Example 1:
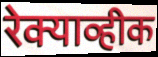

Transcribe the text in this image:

रेक्याव्हीक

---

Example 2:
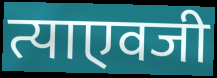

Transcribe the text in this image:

त्याएवजी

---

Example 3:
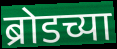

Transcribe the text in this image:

ब्रोडच्या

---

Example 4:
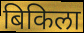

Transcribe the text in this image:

बिकिला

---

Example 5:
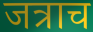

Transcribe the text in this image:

जत्राच